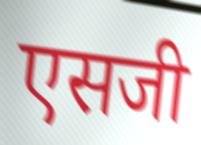
एसजी